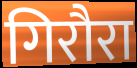
गिरौरा